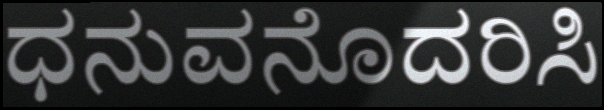
ಧನುವನೊದರಿಸಿ